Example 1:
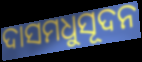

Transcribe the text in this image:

ଦାସମଧୁସୂଦନ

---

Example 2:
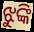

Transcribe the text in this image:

ଝୁଙ୍କି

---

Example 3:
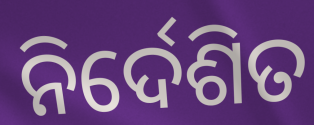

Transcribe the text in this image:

ନିର୍ଦେଶିତ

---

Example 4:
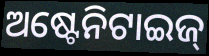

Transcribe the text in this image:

ଅଷ୍ଟେନିଟାଇଜ୍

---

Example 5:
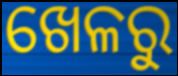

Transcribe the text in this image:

ଖେଳରୁ